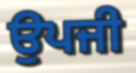
ਉਪਜੀ